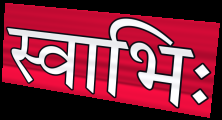
स्वाभिः